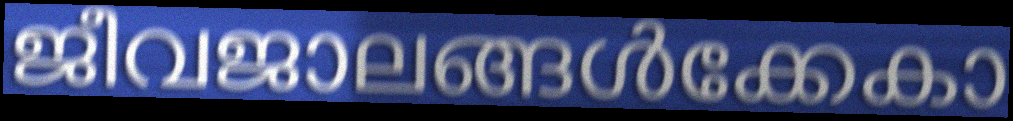
ജീവജാലങ്ങൾക്കേകാ